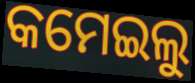
କମେଇଲୁ